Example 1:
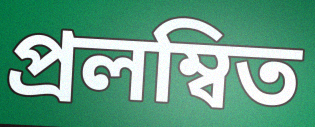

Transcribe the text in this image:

প্রলম্বিত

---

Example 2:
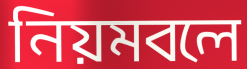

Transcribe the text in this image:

নিয়মবলে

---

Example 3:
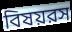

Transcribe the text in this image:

বিষয়রস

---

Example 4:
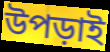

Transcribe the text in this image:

উপড়াই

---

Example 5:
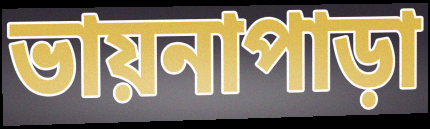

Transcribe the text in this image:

ভায়নাপাড়া